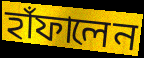
হাঁফালেন